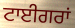
ਟਾਈਗਰਾਂ